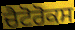
ਚੈਟੋਰੋਕਸ